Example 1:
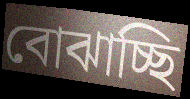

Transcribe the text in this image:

বোঝাচ্ছি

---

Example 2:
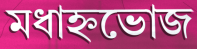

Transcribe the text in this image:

মধাহ্নভোজ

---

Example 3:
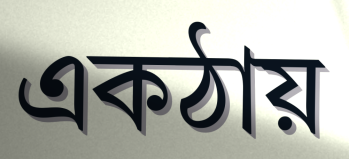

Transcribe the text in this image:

একঠায়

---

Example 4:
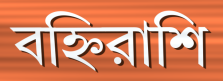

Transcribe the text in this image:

বহ্নিরাশি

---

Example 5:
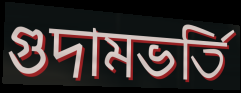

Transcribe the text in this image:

গুদামভর্তি